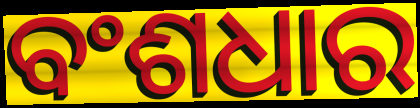
ବଂଶଧାର